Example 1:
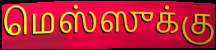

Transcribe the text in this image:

மெஸ்ஸுக்கு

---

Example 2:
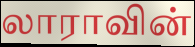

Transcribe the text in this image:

லாராவின்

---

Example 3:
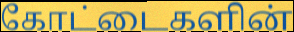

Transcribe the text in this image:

கோட்டைகளின்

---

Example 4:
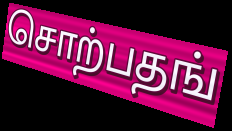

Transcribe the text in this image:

சொற்பதங்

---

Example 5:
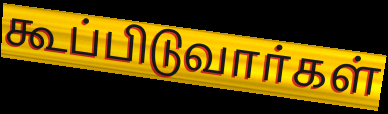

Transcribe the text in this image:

கூப்பிடுவார்கள்